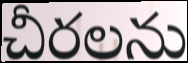
చీరలను